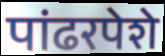
पांढरपेशे